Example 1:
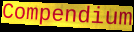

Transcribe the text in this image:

Compendium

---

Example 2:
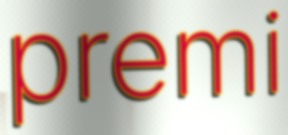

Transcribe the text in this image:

premi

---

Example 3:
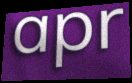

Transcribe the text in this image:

apr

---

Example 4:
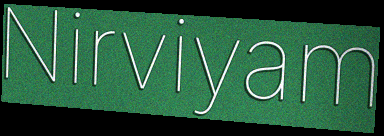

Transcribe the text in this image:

Nirviyam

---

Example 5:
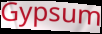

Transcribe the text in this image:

Gypsum